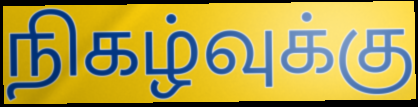
நிகழ்வுக்கு